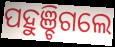
ପହୁଞ୍ଚିଗଲେ